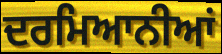
ਦਰਮਿਆਨੀਆਂ